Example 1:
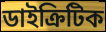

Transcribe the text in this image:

ডাইক্ৰিটিক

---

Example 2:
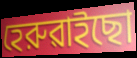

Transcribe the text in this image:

হেৰুৱাইছো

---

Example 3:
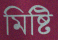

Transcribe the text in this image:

মিষ্টি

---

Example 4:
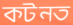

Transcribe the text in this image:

কটনত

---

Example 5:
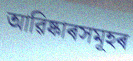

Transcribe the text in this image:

আৱিষ্কাৰসমূহৰ